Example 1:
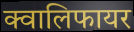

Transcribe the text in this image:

क्वालिफायर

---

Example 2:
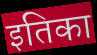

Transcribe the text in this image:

इतिका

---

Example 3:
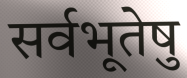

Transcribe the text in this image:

सर्वभूतेषु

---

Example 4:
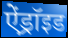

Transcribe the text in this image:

ऐंड्रॉइड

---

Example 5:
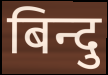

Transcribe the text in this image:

बिन्दु